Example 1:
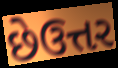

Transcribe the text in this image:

છેઉત્તર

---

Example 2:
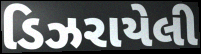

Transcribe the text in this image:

ડિઝરાયેલી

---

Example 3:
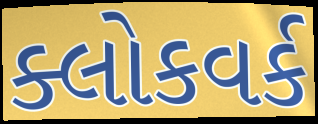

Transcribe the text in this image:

ક્લોકવર્ક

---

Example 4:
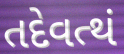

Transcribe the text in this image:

તદેવત્થં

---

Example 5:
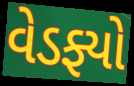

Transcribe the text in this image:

વેડફ્યો